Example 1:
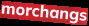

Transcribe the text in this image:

morchangs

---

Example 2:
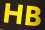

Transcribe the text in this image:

HB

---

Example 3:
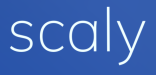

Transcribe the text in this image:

scaly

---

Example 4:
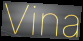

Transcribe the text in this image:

Vina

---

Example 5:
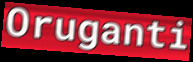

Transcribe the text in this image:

Oruganti